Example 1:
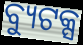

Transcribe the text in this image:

ବ୍ୟୁଟକ୍ସ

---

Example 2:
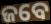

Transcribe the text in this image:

ଜବେ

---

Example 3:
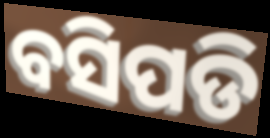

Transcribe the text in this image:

ବସିପଡି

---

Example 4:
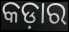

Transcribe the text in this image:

କଡ଼ାର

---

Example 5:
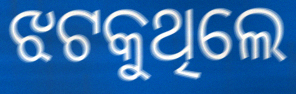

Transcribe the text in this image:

ଝଟକୁଥିଲେ